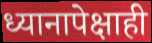
ध्यानापेक्षाही